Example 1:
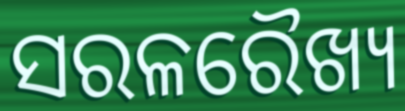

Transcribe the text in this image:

ସରଳରୈଖ୍ୟ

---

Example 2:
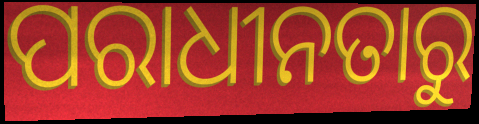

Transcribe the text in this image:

ପରାଧୀନତାରୁ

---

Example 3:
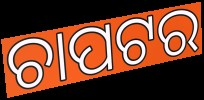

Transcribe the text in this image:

ଚାପଟର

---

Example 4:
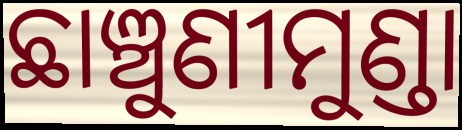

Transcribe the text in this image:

ଛାଞ୍ଚୁଣୀମୁଣ୍ଡା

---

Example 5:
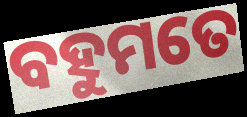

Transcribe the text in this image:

ବହୁମତେ